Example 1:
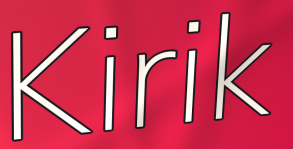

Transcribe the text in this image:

Kirik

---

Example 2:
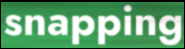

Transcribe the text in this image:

snapping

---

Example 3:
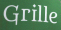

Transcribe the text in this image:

Grille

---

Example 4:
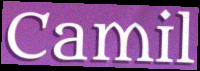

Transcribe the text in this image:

Camil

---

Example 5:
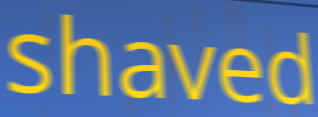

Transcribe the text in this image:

shaved